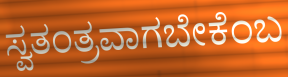
ಸ್ವತಂತ್ರವಾಗಬೇಕೆಂಬ